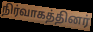
நிர்வாகத்தினர்